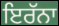
ਇਰੱਨਾ